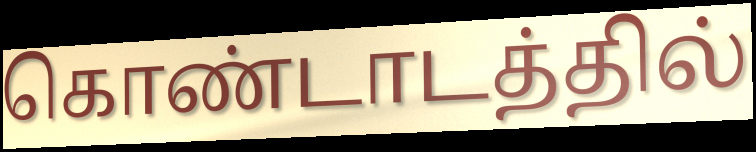
கொண்டாடத்தில்